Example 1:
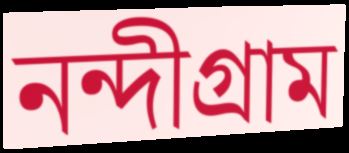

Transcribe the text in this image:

নন্দীগ্রাম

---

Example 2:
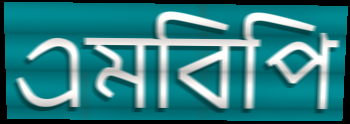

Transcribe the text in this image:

এমবিপি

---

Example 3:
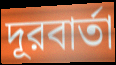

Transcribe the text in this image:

দূরবার্তা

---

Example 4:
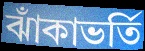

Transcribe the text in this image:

ঝাঁকাভর্তি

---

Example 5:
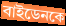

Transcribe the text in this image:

বাইডেনকে